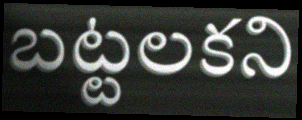
బట్టలకని